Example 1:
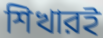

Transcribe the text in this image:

শিখারই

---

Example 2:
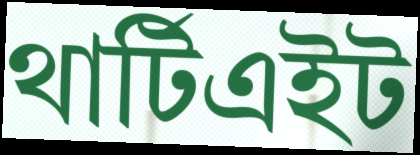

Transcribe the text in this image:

থার্টিএইট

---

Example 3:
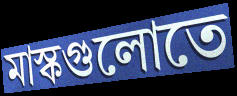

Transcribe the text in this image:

মাস্কগুলোতে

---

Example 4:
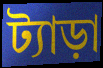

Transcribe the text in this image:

ট্যাড়া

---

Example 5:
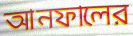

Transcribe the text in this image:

আনফালের